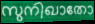
സുനിഖാതോ